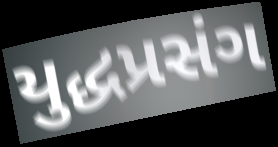
યુદ્ધપ્રસંગ